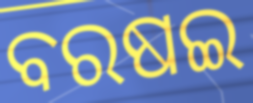
ବରଷଇ